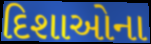
દિશાઓના